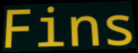
Fins